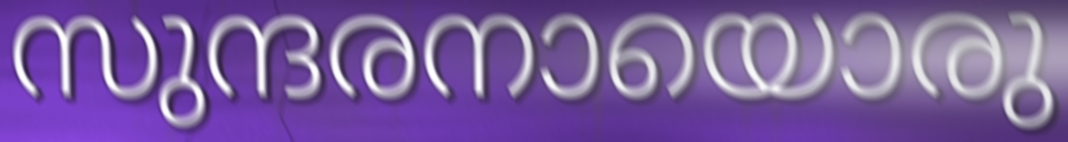
സുന്ദരനായൊരു